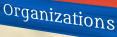
Organizations